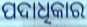
ପଦାଧିକାର